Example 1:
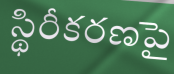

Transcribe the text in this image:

స్థిరీకరణపై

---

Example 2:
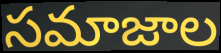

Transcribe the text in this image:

సమాజాల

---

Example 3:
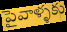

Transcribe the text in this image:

పైవాళ్ళకు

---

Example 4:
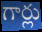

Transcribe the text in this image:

గార్లు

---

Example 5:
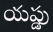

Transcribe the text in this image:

యప్డు